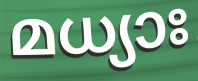
മധ്യാഃ